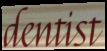
dentist